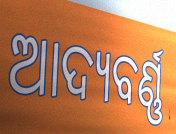
ଆଦ୍ୟବର୍ଣ୍ଣ